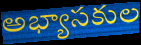
అభ్యాసకుల